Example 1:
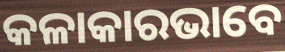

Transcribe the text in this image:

କଳାକାରଭାବେ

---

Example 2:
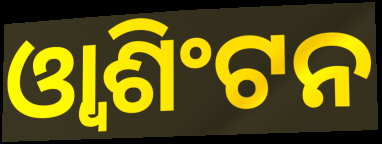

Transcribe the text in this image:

ଓ୍ୱାଶିଂଟନ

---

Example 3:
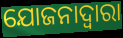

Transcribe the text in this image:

ଯୋଜନାଦ୍ୱାରା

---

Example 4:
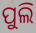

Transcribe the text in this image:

ପୁଲି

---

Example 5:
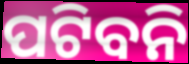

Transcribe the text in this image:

ପଟିବନି